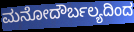
ಮನೋದೌರ್ಬಲ್ಯದಿಂದ